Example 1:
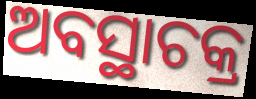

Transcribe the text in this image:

ଅବସ୍ଥାଚକ୍ର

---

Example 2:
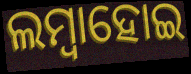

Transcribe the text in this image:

ଲମ୍ୱାହୋଇ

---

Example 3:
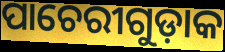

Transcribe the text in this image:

ପାଚେରୀଗୁଡ଼ାକ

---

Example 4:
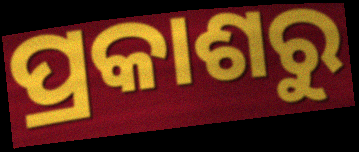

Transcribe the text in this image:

ପ୍ରକାଶରୁ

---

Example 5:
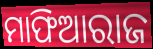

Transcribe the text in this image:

ମାଫିଆରାଜ